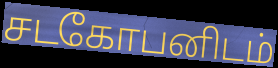
சடகோபனிடம்